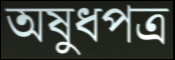
অষুধপত্র